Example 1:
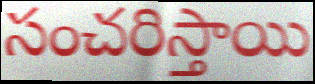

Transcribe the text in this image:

సంచరిస్తాయి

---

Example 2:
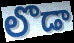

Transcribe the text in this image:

లొడా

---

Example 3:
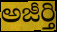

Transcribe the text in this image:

అజీర్తి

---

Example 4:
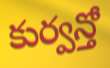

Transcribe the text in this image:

కుర్వన్తో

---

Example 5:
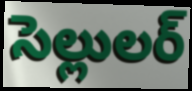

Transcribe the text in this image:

సెల్లులర్